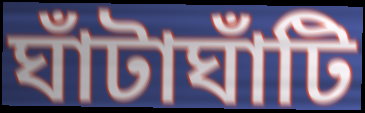
ঘাঁটাঘাঁটি